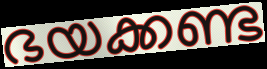
ഭയക്കണ്ട